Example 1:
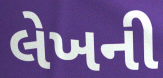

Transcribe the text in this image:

લેખની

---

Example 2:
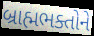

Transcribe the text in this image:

બ્રાહ્મભક્તોને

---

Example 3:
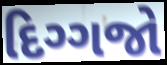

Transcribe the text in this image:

દિગ્ગજો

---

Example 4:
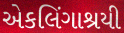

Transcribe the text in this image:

એકલિંગાશ્રયી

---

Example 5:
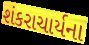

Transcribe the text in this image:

શંકરાચાર્યના